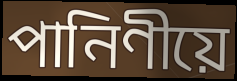
পানিণীয়ে